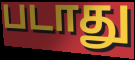
படாது